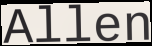
Allen